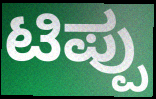
ಟಿಪ್ಪು